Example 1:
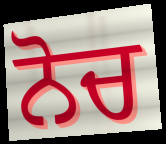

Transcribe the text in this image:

ਨੋਚ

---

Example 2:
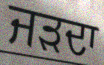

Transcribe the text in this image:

ਜੜਦਾ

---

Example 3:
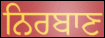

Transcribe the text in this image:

ਨਿਰਬਾਣ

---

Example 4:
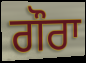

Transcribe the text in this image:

ਗੌਰਾ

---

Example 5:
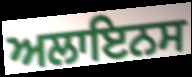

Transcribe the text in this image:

ਅਲਾਇਨਸ